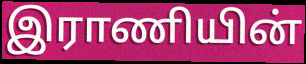
இராணியின்